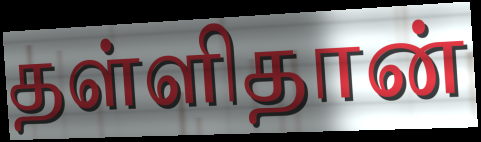
தள்ளிதான்